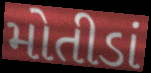
મોતીડાં